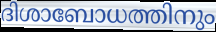
ദിശാബോധത്തിനും